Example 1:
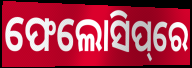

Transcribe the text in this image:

ଫେଲୋସିପ୍‌ରେ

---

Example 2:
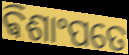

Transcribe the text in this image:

ଵିଶାଂପତେ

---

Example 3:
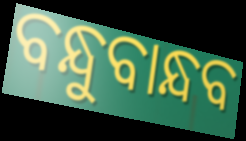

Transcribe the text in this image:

ବନ୍ଧୁବାନ୍ଧବ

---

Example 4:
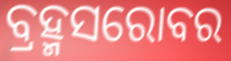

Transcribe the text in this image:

ବ୍ରହ୍ମସରୋବର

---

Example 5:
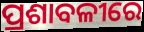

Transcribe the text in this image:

ପ୍ରଶାବଳୀରେ